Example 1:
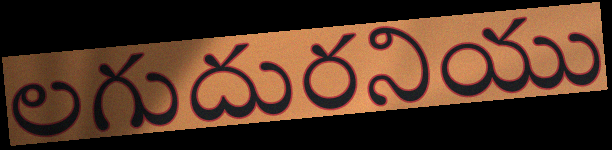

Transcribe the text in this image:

లగుదురనియు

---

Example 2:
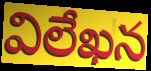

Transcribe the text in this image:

విలేఖన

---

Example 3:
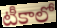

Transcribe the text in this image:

టీకాలో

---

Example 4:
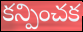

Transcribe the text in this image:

కన్పించక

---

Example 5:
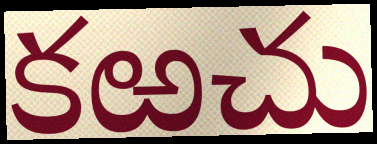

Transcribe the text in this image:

కఱచు